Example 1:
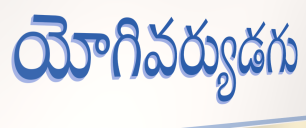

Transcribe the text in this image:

యోగివర్యుడగు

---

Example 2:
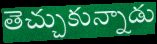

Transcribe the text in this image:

తెచ్చుకున్నాడు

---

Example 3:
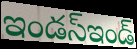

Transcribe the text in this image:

ఇండస్ఇండ్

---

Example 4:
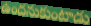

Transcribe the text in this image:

ఉందనుకుంటాడు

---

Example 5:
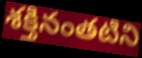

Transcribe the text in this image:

శక్తినంతటిని